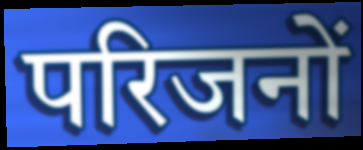
परिजनों